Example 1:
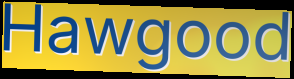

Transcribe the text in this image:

Hawgood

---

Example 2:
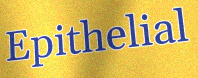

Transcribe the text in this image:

Epithelial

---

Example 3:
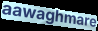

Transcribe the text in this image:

aawaghmare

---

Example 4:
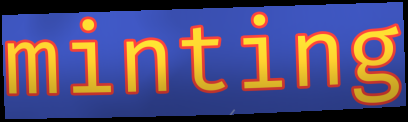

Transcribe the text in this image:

minting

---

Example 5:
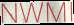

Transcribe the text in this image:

NWMI